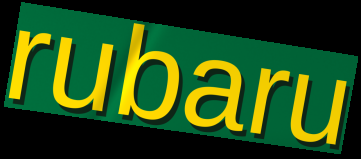
rubaru